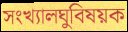
সংখ্যালঘুবিষয়ক